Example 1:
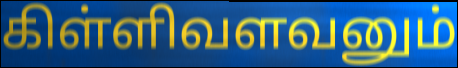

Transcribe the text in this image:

கிள்ளிவளவனும்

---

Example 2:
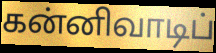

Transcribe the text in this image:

கன்னிவாடிப்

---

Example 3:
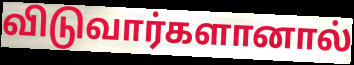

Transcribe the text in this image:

விடுவார்களானால்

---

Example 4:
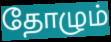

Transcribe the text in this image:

தோழும்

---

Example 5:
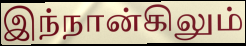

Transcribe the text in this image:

இந்நான்கிலும்